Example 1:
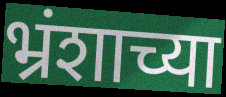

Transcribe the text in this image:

भ्रंशाच्या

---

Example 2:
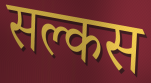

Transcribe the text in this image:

सल्कस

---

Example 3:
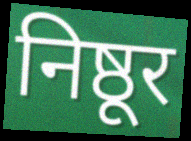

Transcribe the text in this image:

निष्ठूर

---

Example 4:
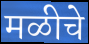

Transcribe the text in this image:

मळीचे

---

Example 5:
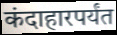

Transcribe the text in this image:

कंदाहारपर्यंत